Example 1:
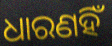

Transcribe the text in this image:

ଧାରଣହିଁ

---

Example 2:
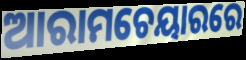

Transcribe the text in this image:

ଆରାମଚେୟାରରେ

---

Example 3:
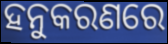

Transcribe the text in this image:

ହନୁକରଣରେ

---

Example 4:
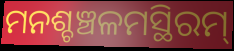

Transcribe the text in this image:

ମନଶ୍ଚଞ୍ଚଳମସ୍ଥିରମ୍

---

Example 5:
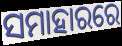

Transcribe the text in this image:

ସମାହାରରେ